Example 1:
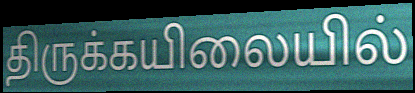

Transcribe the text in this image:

திருக்கயிலையில்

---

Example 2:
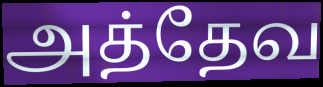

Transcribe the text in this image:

அத்தேவ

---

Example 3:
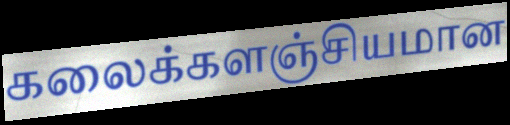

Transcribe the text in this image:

கலைக்களஞ்சியமான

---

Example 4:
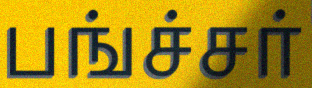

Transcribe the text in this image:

பங்ச்சர்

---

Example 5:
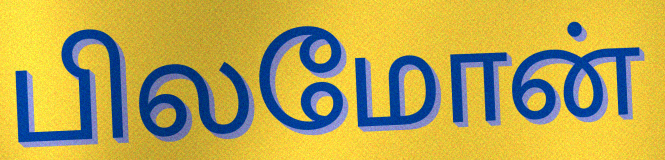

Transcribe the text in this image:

பிலமோன்